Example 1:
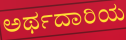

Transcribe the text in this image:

ಅರ್ಥದಾರಿಯ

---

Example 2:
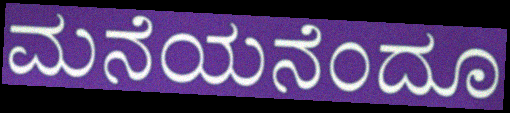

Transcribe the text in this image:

ಮನೆಯನೆಂದೂ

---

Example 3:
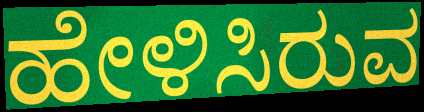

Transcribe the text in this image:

ಹೇಳಿಸಿರುವ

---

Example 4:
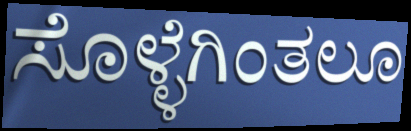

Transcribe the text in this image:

ಸೊಳ್ಳೆಗಿಂತಲೂ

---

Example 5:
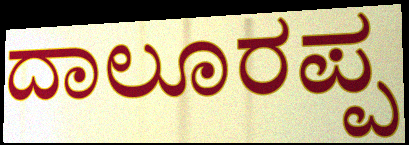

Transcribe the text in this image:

ದಾಲೂರಪ್ಪ